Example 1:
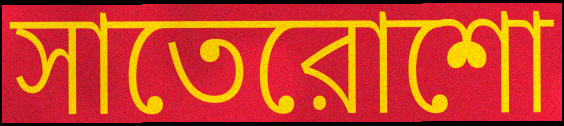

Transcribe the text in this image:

সাতেরোশো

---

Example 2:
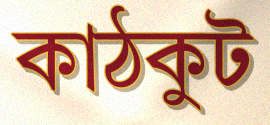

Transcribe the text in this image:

কাঠকুট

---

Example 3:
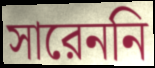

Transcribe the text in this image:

সারেননি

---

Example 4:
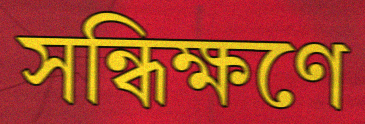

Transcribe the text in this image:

সন্ধিক্ষণে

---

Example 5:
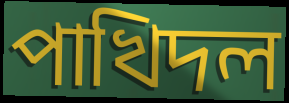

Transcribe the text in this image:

পাখিদল